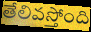
తేలివస్తోంది